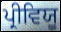
ਪ੍ਰੀਵਿਯੂ